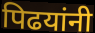
पिढयांनी